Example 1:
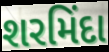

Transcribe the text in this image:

શરમિંદા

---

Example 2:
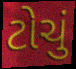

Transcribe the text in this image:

ટોચું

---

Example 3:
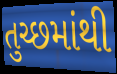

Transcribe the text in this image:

તુચ્છમાંથી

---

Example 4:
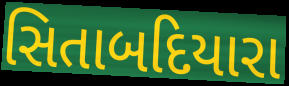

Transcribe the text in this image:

સિતાબદિયારા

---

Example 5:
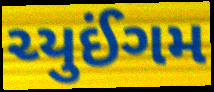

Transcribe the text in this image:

ચ્યુઈંગમ